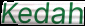
Kedah